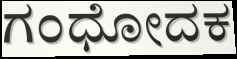
ಗಂಧೋದಕ